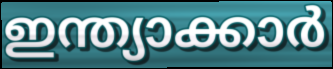
ഇന്ത്യാക്കാർ